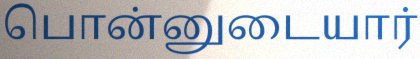
பொன்னுடையார்